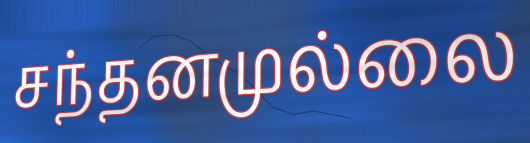
சந்தனமுல்லை